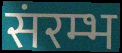
संरम्भ